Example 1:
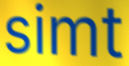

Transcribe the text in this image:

simt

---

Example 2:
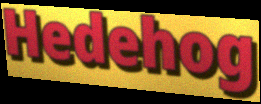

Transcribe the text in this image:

Hedehog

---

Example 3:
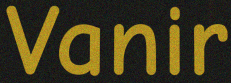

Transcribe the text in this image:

Vanir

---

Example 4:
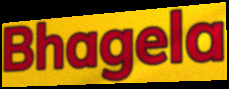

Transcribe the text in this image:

Bhagela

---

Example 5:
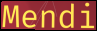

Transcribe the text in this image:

Mendi